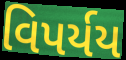
વિપર્યય